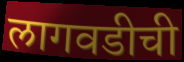
लागवडीची